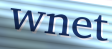
wnet